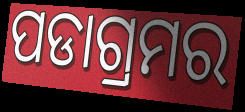
ପଡାଗ୍ରମର